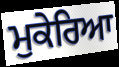
ਮੁਕੇਰਿਆ